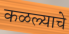
कळल्याचे